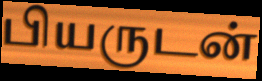
பியருடன்